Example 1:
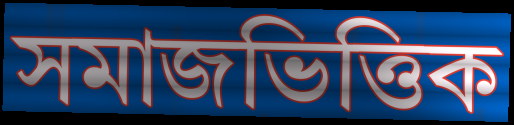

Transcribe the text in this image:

সমাজভিত্তিক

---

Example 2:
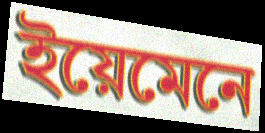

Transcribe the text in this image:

ইয়েমেনে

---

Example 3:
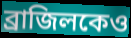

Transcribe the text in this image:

ব্রাজিলকেও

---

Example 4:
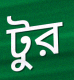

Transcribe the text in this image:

টুর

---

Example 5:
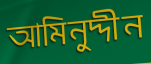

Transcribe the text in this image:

আমিনুদ্দীন